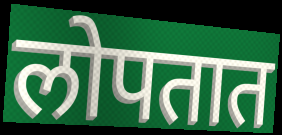
लोपतात